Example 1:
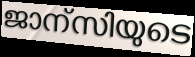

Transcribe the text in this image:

ജാന്സിയുടെ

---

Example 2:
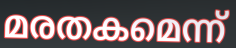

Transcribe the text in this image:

മരതകമെന്ന്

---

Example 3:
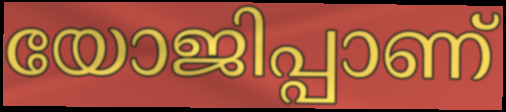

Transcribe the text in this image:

യോജിപ്പാണ്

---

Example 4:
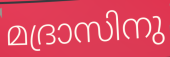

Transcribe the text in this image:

മദ്രാസിനു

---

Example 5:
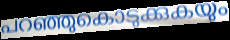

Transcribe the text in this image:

പറഞ്ഞുകൊടുക്കുകയും